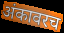
अंकावरच